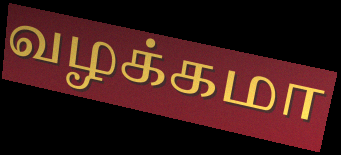
வழக்கமா